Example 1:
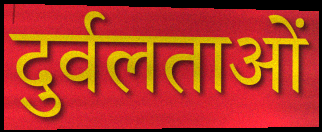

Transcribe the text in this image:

दुर्वलताओं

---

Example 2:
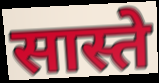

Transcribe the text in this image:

सास्ते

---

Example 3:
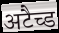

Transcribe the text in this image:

अटैच्ड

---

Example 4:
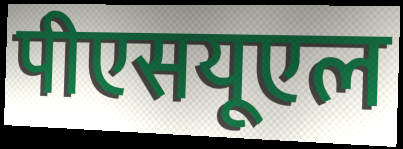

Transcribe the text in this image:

पीएसयूएल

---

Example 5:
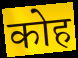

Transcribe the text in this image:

कोह